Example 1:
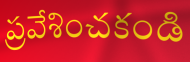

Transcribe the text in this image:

ప్రవేశించకండి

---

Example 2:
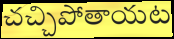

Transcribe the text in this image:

చచ్చిపోతాయట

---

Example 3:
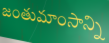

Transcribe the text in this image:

జంతుమాంసాన్ని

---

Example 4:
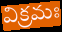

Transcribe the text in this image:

విక్రమః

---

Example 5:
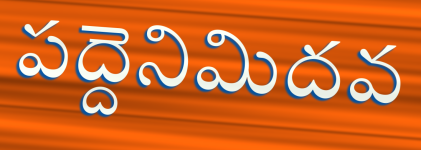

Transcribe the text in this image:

పద్దెనిమిదవ